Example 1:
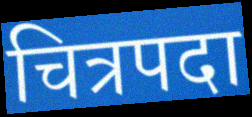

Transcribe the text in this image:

चित्रपदा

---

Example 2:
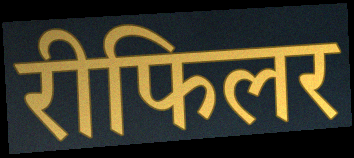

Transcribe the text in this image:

रीफिलर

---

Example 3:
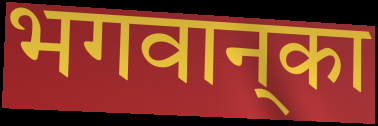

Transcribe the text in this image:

भगवान्‌का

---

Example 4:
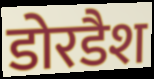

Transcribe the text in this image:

डोरडैश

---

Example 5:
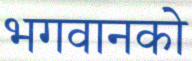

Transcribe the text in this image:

भगवानको